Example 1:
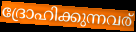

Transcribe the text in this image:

ദ്രോഹിക്കുന്നവര്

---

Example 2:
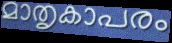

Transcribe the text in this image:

മാതൃകാപരം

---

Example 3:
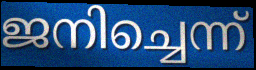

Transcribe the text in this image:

ജനിച്ചെന്ന്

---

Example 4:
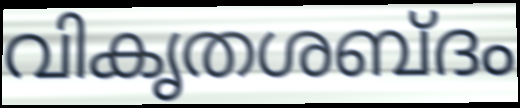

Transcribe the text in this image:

വികൃതശബ്ദം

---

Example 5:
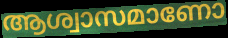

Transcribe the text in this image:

ആശ്വാസമാണോ